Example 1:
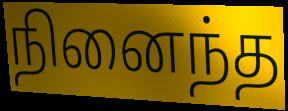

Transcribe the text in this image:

நினைந்த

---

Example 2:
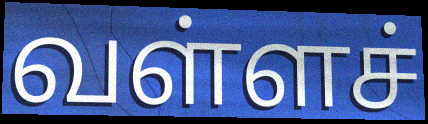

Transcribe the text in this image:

வள்ளச்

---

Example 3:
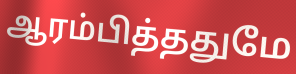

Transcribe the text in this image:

ஆரம்பித்ததுமே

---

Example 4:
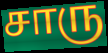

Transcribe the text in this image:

சாரு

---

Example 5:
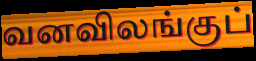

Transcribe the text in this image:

வனவிலங்குப்